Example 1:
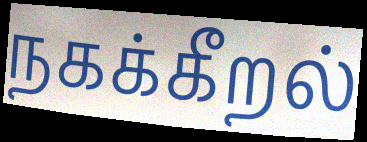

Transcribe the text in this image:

நகக்கீறல்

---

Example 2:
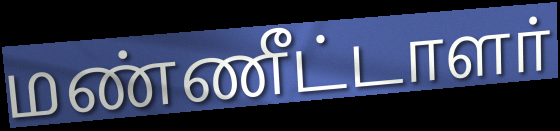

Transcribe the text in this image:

மண்ணீட்டாளர்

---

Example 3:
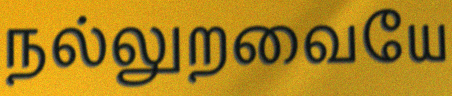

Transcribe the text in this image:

நல்லுறவையே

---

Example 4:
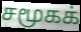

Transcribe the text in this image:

சமூகக்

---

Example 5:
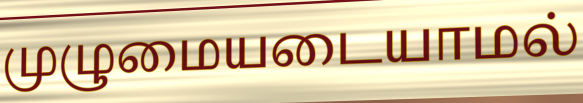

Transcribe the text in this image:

முழுமையடையாமல்